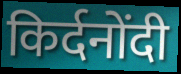
किर्दनोंदी